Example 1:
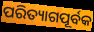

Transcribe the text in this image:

ପରିତ୍ୟାଗପୂର୍ବକ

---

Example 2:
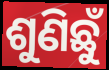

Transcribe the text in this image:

ଶୁଣିଛୁଁ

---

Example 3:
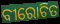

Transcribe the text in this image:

ବୀରୋଚିତ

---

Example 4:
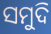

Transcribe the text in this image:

ସମୁଦି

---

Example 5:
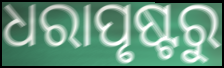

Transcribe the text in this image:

ଧରାପୃଷ୍ଟରୁ